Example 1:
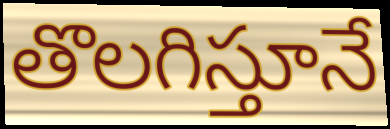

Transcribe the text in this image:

తొలగిస్తూనే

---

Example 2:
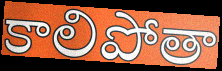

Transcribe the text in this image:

కాలిపోతా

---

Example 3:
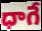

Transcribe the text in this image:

ధాగే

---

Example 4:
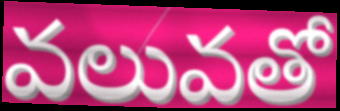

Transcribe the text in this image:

వలువతో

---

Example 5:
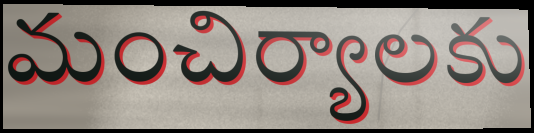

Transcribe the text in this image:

మంచిర్యాలకు